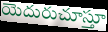
యెదురుచూస్తూ